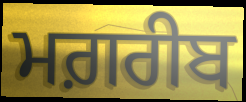
ਮਗ਼ਰੀਬ